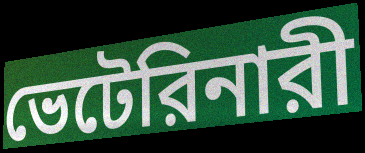
ভেটেরিনারী